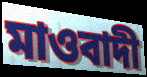
মাওবাদী